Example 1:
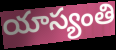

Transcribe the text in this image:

యాస్యంతి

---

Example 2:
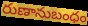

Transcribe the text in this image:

రుణానుబంధం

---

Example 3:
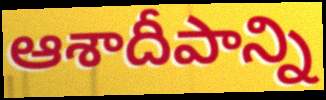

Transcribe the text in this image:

ఆశాదీపాన్ని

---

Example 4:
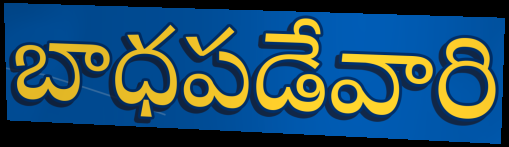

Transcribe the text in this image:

బాధపడేవారి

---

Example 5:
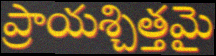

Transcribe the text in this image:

ప్రాయశ్చిత్తమై